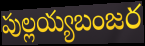
పుల్లయ్యబంజర